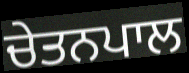
ਚੇਤਨਪਾਲ